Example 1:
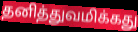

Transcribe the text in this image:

தனித்துவமிக்கது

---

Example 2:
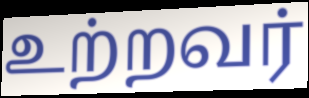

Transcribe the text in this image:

உற்றவர்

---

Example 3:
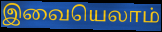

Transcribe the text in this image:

இவையெலாம்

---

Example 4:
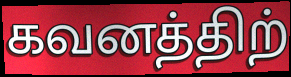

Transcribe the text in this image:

கவனத்திற்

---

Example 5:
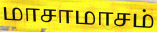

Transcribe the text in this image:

மாசாமாசம்